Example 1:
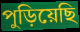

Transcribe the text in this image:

পুড়িয়েছি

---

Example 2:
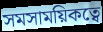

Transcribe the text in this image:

সমসাময়িকত্বে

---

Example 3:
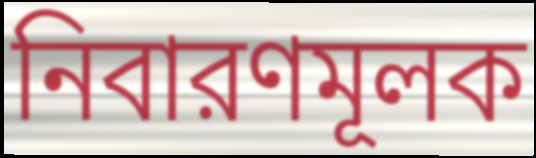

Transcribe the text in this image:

নিবারণমূলক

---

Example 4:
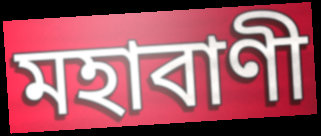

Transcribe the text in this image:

মহাবাণী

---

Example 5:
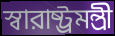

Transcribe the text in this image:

স্বারাষ্ট্রমন্ত্রী